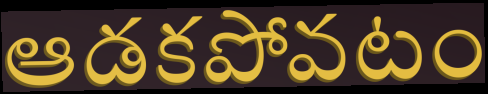
ఆడకపోవటం